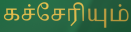
கச்சேரியும்